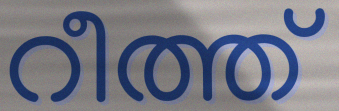
റീത്ത്